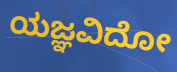
ಯಜ್ಞವಿದೋ